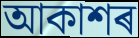
আকাশৰ